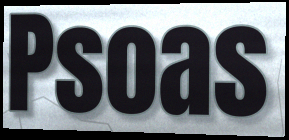
Psoas